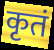
कृतं